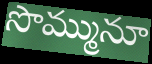
సొమ్మునూ